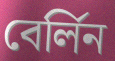
বের্লিন